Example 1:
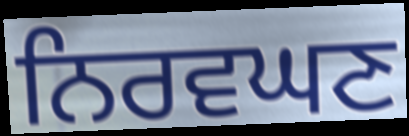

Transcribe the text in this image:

ਨਿਰਵਘਣ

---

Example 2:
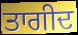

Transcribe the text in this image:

ਤਾਗੀਦ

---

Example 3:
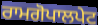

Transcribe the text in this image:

ਰਾਮਗੋਪਾਲਪੇਟ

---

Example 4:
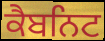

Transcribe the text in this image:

ਕੈਬਨਿਟ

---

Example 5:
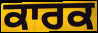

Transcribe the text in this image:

ਕਾਰਕ